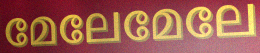
മേലേമേലേ